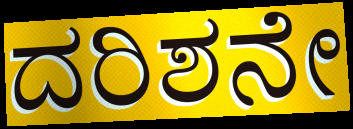
ದರಿಶನೇ